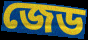
জেড